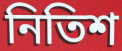
নিতিশ